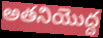
అతనియొద్ద